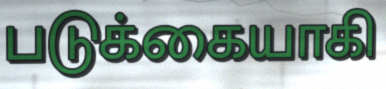
படுக்கையாகி